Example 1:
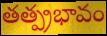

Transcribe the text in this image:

తత్ప్రభావం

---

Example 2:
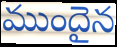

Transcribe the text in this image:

ముందైన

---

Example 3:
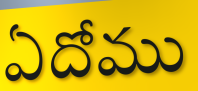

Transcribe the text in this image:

ఏదోము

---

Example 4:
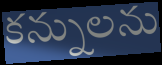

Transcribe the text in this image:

కన్నులను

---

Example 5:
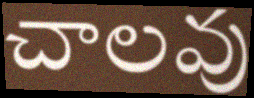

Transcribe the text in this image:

చాలవు